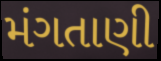
મંગતાણી